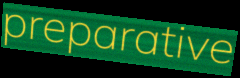
preparative